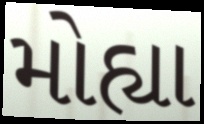
મોહ્યા